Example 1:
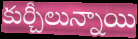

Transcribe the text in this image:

కుర్చీలున్నాయి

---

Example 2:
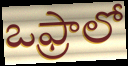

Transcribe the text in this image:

ఒఫ్రాలో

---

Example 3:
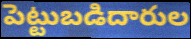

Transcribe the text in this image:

పెట్టుబడిదారుల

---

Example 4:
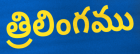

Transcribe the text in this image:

త్రిలింగము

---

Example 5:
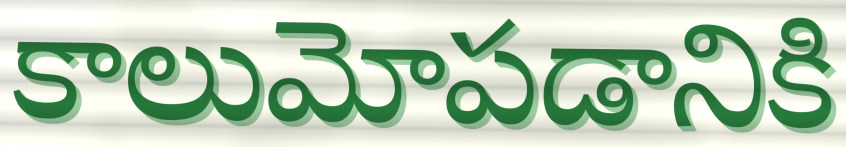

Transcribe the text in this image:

కాలుమోపడానికి